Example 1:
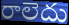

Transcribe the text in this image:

రాలెదు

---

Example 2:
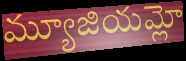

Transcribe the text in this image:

మ్యూజియమ్లో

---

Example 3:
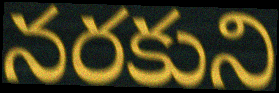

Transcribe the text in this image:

నరకుని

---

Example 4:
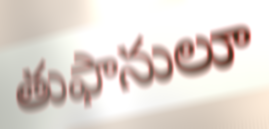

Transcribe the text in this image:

తుఫానులూ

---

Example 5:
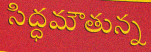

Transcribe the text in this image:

సిద్ధమౌతున్న